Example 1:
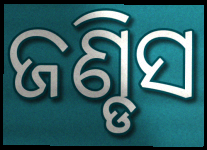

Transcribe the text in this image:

ଜଣ୍ଡିସ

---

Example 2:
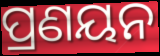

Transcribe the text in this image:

ପ୍ରଣୟନ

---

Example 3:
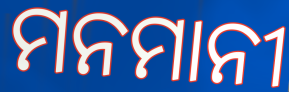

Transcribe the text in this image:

ମନମାନୀ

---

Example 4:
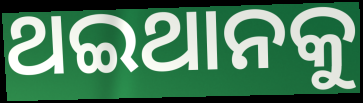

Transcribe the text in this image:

ଥଇଥାନକୁ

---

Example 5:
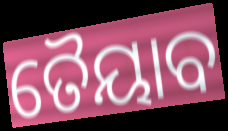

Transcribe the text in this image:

ତୈୟାବ